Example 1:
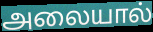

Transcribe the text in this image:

அலையால்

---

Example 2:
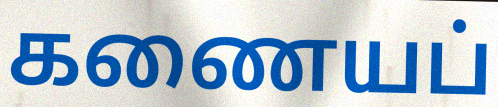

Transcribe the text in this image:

கணையப்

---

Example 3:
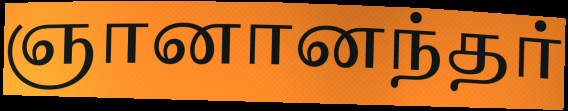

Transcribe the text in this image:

ஞானானந்தர்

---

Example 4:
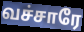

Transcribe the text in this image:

வச்சாரே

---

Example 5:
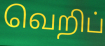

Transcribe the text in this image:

வெறிப்